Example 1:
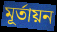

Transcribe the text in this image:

মূর্তায়ন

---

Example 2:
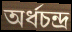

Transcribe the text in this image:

অর্ধচন্দ্র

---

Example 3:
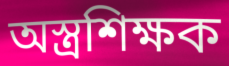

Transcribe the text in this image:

অস্ত্রশিক্ষক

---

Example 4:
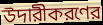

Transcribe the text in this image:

উদারীকরণের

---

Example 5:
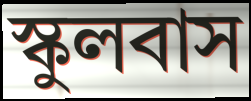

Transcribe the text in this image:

স্কুলবাস